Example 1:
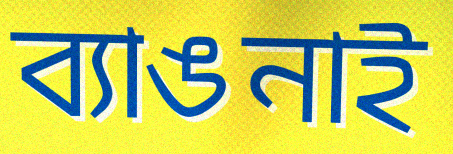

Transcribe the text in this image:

ব্যাঙনাই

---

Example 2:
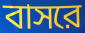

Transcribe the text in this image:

বাসরে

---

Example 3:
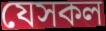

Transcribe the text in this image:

যেসকল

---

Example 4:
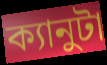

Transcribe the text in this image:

ক্যানুটা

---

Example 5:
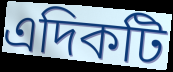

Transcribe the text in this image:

এদিকটি